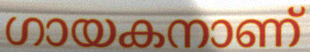
ഗായകനാണ്